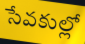
సేవకుల్లో